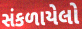
સંકળાયેલો